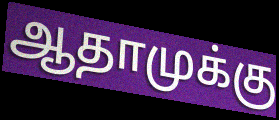
ஆதாமுக்கு